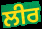
ਲੀਰ